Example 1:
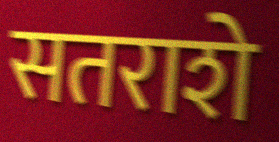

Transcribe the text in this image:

सतराशे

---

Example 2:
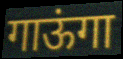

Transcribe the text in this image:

गाऊंगा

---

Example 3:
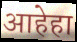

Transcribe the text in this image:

आहेहा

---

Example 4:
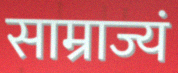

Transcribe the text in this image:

साम्राज्यं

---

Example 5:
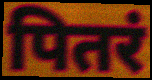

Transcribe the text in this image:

पितरं